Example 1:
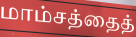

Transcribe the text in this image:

மாம்சத்தைத்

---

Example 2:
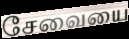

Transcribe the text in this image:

சேவையை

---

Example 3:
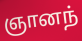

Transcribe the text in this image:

ஞானந்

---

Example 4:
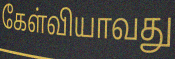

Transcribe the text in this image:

கேள்வியாவது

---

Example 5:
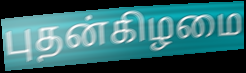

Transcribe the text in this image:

புதன்கிழமை